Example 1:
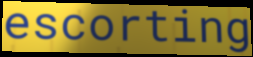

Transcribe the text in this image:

escorting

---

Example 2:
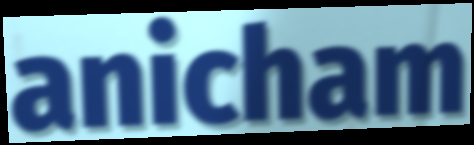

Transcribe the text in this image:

anicham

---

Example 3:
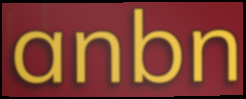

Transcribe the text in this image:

anbn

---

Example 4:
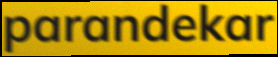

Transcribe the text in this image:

parandekar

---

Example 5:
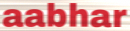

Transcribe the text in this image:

aabhar